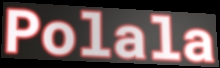
Polala